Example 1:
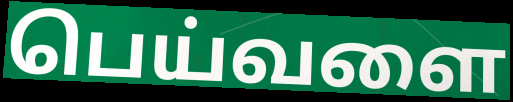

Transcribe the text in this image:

பெய்வளை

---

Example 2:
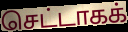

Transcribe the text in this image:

செட்டாகக்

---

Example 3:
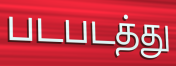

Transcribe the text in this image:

படபடத்து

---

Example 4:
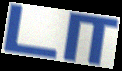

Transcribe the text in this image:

டா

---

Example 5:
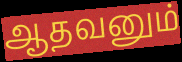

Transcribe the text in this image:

ஆதவனும்